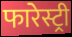
फारेस्ट्री